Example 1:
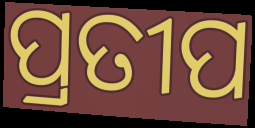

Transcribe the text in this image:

ପ୍ରତୀପ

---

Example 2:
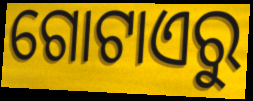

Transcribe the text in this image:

ଗୋଟାଏରୁ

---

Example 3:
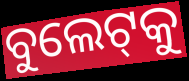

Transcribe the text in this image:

ବୁଲେଟ୍‌କୁ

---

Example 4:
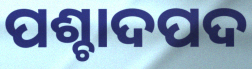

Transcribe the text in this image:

ପଶ୍ଚାଦପଦ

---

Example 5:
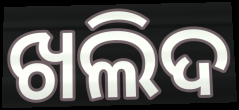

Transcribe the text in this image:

ଖଲିଦ